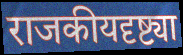
राजकीयदृष्ट्या